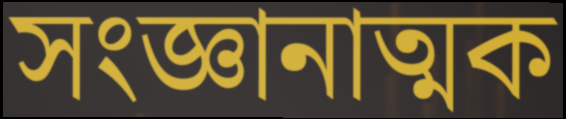
সংজ্ঞানাত্মক